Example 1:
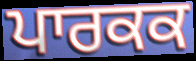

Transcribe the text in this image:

ਪਾਰਕਕ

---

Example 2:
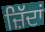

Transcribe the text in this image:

ਜ਼ਿੱਦਾਂ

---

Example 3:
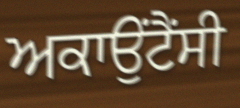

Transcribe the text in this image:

ਅਕਾਉਂਟੈਂਸੀ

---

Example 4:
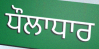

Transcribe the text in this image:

ਧੌਲਾਧਾਰ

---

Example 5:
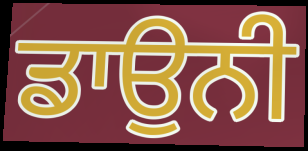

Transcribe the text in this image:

ਡਾਉਨੀ